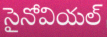
సైనోవియల్